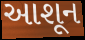
આશૂન